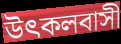
উৎকলবাসী